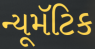
ન્યૂમૅટિક